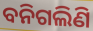
ବନିଗଲିଣି